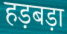
हड़बड़ा